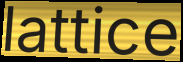
lattice